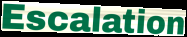
Escalation